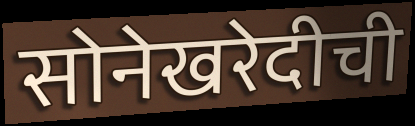
सोनेखरेदीची